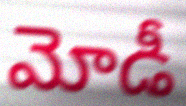
మోడీ